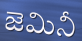
జెమినీ